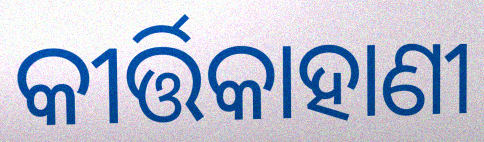
କୀର୍ତ୍ତିକାହାଣୀ